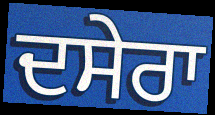
ਦਸੇਰਾ